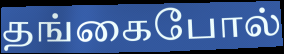
தங்கைபோல்